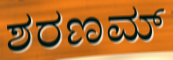
ಶರಣಮ್